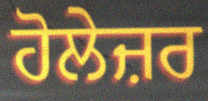
ਹੋਲੇਜ਼ਰ